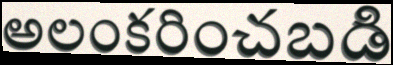
అలంకరించబడి